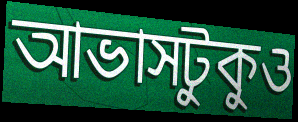
আভাসটুকুও